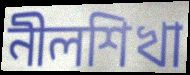
নীলশিখা